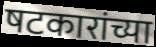
षटकारांच्या